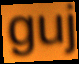
guj